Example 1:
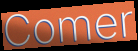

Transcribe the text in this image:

Comer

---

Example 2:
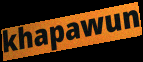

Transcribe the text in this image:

khapawun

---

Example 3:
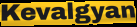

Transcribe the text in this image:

Kevalgyan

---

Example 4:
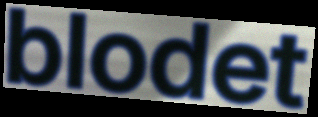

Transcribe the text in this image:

blodet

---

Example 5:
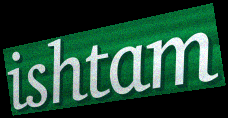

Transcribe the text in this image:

ishtam